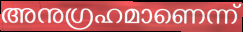
അനുഗ്രഹമാണെന്ന്